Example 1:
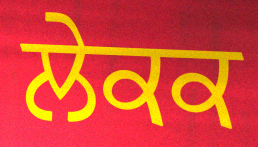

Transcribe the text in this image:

ਲੇਕਕ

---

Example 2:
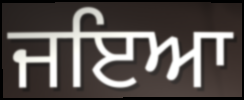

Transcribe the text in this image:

ਜਇਆ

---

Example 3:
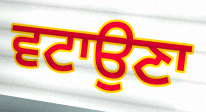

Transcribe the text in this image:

ਵਟਾਉਣਾ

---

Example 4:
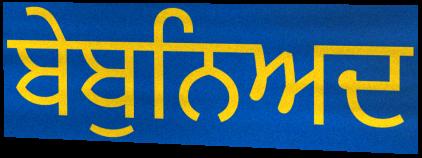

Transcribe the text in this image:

ਬੇਬੁਨਿਅਦ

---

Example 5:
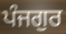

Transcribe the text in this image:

ਪੰਜਗੁਰ